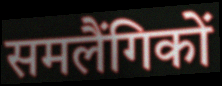
समलैंगिकों